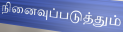
நினைவுப்படுத்தும்